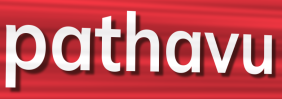
pathavu